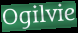
Ogilvie